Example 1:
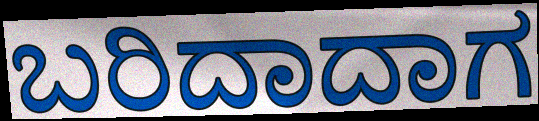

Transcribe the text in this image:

ಬರಿದಾದಾಗ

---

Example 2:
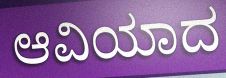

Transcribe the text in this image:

ಆವಿಯಾದ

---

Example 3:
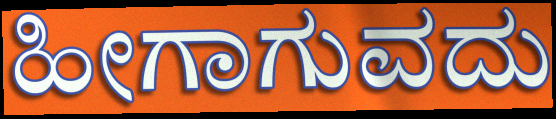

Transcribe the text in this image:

ಹೀಗಾಗುವದು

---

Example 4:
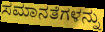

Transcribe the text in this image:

ಸಮಾನತೆಗಳನ್ನು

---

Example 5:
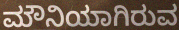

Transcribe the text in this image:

ಮೌನಿಯಾಗಿರುವ